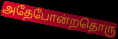
அதேபோன்றதொரு